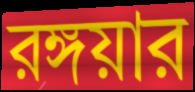
রঙ্গয়ার